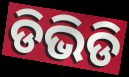
ଡିଭିଡି